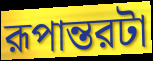
রূপান্তরটা